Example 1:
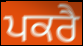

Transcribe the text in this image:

ਪਕਰੈ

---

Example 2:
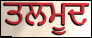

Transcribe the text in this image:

ਤਲਮੂਦ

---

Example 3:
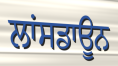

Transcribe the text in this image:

ਲਾਂਸਡਾਊਨ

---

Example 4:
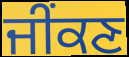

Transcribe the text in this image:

ਜੀਂਕਣ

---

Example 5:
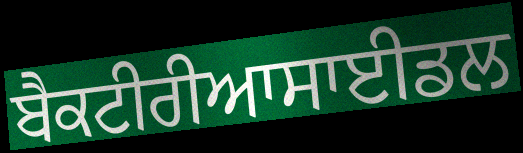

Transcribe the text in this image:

ਬੈਕਟੀਰੀਆਸਾਈਡਲ